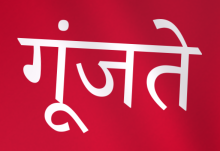
गूंजते